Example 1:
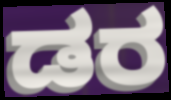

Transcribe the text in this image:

ಡರ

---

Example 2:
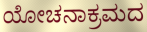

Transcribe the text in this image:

ಯೋಚನಾಕ್ರಮದ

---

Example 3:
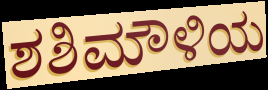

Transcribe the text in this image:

ಶಶಿಮೌಳಿಯ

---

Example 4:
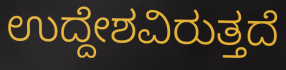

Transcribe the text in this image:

ಉದ್ದೇಶವಿರುತ್ತದೆ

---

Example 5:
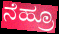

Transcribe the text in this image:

ನೆಹ್ರೂ